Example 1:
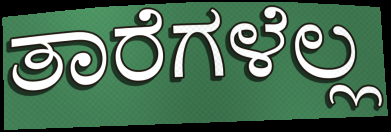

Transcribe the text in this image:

ತಾರೆಗಳೆಲ್ಲ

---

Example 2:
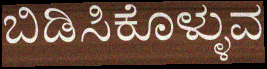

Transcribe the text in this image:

ಬಿಡಿಸಿಕೊಳ್ಳುವ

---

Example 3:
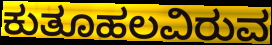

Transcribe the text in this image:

ಕುತೂಹಲವಿರುವ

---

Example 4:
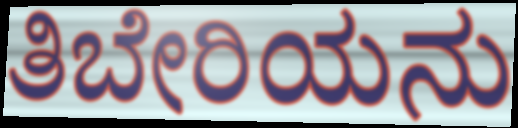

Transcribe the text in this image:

ತಿಬೇರಿಯನು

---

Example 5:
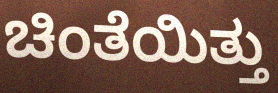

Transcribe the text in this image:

ಚಿಂತೆಯಿತ್ತು